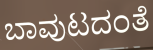
ಬಾವುಟದಂತೆ